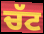
ਚੱਟ